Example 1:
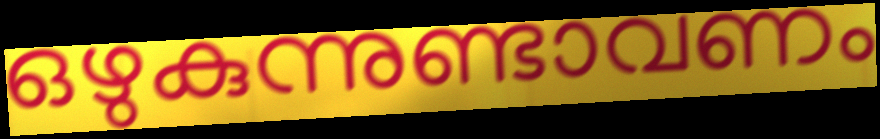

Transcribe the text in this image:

ഒഴുകുന്നുണ്ടാവണം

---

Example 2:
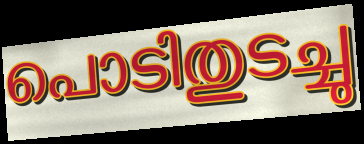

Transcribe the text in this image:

പൊടിതുടച്ചു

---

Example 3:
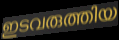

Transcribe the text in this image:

ഇടവരുത്തിയ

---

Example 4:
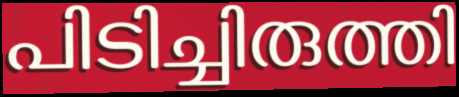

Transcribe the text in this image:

പിടിച്ചിരുത്തി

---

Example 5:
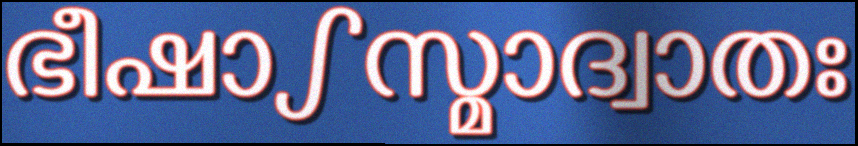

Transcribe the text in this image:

ഭീഷാഽസ്മാദ്വാതഃ